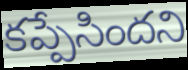
కప్పేసిందని